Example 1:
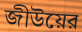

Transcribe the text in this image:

জীউয়ের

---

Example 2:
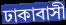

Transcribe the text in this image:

ঢাকাবাসী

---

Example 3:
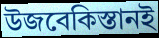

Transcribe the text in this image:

উজবেকিস্তানই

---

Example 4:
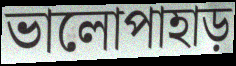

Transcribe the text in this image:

ভালোপাহাড়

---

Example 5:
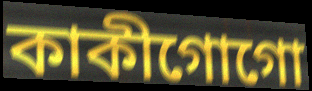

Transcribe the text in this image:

কাকীগোগো